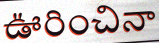
ఊరించినా